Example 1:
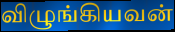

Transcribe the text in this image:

விழுங்கியவன்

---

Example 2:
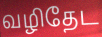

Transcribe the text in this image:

வழிதேட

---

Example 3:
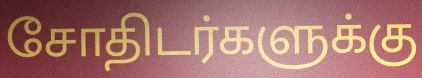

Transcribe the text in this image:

சோதிடர்களுக்கு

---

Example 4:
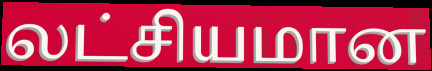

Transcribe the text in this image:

லட்சியமான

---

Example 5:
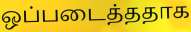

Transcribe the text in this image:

ஒப்படைத்ததாக